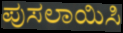
ಪುಸಲಾಯಿಸಿ